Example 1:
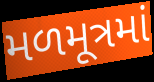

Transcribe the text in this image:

મળમૂત્રમાં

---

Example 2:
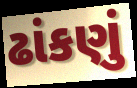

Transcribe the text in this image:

ઢાંકણું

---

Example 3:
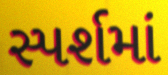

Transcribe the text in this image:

સ્પર્શમાં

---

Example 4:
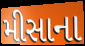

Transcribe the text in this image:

મીસાના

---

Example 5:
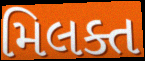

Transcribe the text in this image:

મિલક્ત